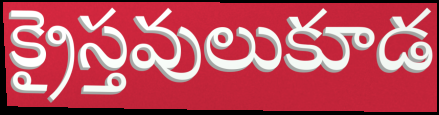
క్రైస్తవులుకూడ